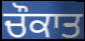
ਚੌਕਾਤ